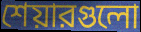
শেয়ারগুলো